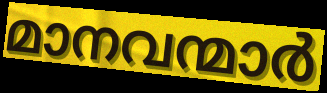
മാനവന്മാർ